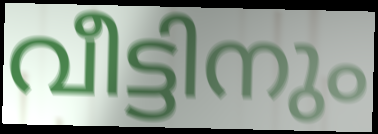
വീട്ടിനും